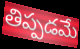
తిప్పడమే